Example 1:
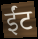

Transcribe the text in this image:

ईंट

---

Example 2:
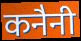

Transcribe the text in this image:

कनैनी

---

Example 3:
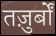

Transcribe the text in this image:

तज़ुर्बों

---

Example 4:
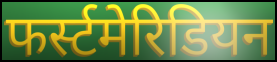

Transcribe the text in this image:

फर्स्टमेरिडियन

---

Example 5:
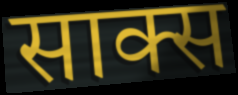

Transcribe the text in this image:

साक्स